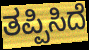
ತಪ್ಪಿಸಿದೆ